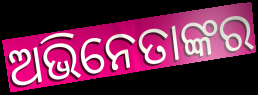
ଅଭିନେତାଙ୍କର